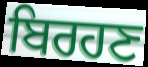
ਬਿਰਹਣ